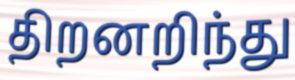
திறனறிந்து